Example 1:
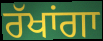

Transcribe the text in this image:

ਰੱਖਾਂਗਾ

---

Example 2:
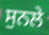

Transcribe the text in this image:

ਸੁਨਲੇ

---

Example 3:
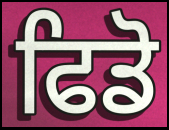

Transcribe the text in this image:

ਫਿਡੋ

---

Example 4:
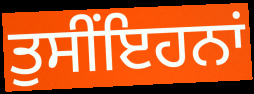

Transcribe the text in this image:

ਤੁਸੀਂਇਹਨਾਂ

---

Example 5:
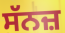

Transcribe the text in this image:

ਸੱਨਜ਼